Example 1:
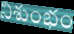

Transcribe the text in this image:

నిశుంభం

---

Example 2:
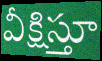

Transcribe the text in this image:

వీక్షిస్తూ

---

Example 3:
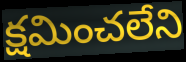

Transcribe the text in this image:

క్షమించలేని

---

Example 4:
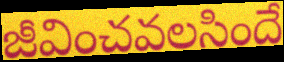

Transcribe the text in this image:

జీవించవలసిందే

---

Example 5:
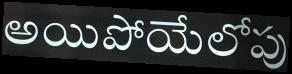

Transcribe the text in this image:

అయిపోయేలోపు